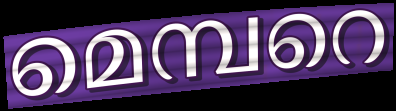
മെമ്പറെ